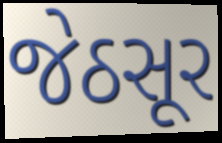
જેઠસૂર